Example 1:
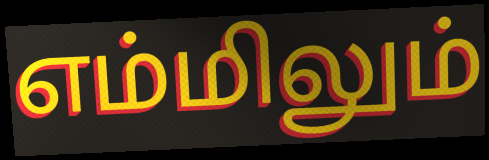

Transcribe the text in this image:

எம்மிலும்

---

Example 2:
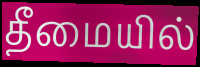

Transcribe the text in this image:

தீமையில்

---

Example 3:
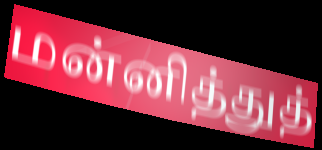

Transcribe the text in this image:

மன்னித்துத்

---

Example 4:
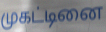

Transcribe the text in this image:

முகட்டினை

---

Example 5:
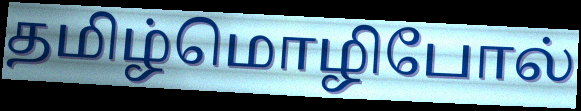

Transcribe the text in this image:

தமிழ்மொழிபோல்